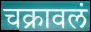
चक्रावलं